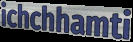
ichchhamti